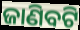
ଜାଣିବଟି